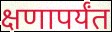
क्षणापर्यंत